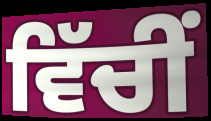
ਵਿੱਚੀਂ